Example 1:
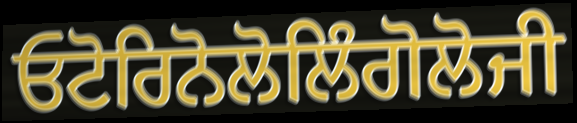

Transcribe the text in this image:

ਓਟੋਰਿਨੋਲੋਲਿੰਗੋਲੋਜੀ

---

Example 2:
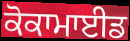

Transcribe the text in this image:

ਕੋਕਾਮਾਈਡ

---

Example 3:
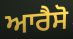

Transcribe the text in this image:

ਆਰੈਸੋ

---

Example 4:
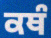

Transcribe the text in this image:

ਕਥੰ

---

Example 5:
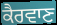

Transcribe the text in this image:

ਕੈਰਵਾਣ